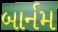
બાર્નમ